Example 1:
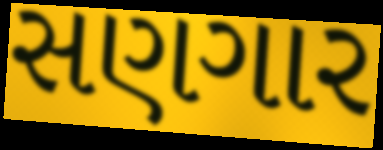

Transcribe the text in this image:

સણગાર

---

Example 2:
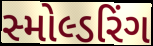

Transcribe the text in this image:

સ્મોલ્ડરિંગ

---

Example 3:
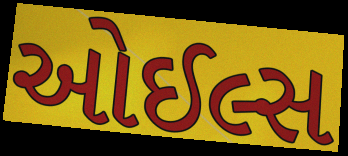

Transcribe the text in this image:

ઓઈલ્સ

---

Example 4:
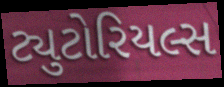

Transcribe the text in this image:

ટ્યુટોરિયલ્સ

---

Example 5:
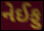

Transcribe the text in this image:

નેઈફુ